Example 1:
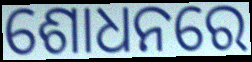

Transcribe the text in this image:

ଶୋଧନରେ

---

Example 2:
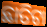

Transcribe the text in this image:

ଛାତିଟା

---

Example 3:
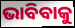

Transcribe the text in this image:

ଭାବିବାକୁ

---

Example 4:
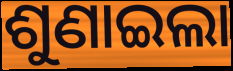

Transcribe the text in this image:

ଶୁଣାଇଲା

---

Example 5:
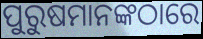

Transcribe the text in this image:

ପୁରୁଷମାନଙ୍କଠାରେ